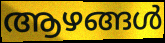
ആഴങ്ങൾ